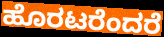
ಹೊರಟರೆಂದರೆ